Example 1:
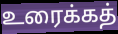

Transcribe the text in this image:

உரைக்கத்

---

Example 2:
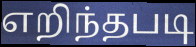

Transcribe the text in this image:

எறிந்தபடி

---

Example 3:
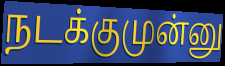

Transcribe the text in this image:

நடக்குமுன்னு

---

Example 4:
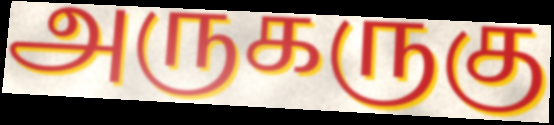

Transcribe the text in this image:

அருகருகு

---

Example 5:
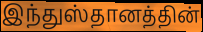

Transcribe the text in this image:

இந்துஸ்தானத்தின்